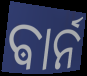
ଵାର୍ନ